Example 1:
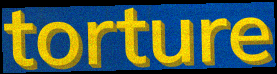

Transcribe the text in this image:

torture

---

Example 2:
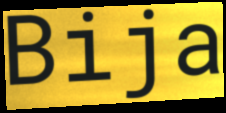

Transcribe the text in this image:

Bija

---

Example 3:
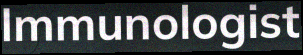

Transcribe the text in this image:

Immunologist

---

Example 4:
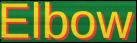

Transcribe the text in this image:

Elbow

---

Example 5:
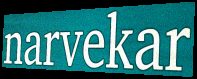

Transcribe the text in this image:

narvekar